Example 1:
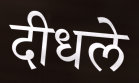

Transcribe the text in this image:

दीधले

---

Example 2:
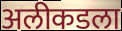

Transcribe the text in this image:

अलीकडला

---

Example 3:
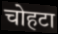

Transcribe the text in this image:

चोहटा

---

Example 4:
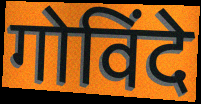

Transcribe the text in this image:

गोविंदे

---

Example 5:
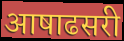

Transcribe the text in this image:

आषाढसरी